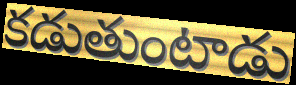
కడుతుంటాడు